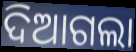
ଦିଆଗଲା